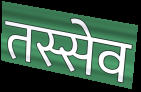
तस्सेव